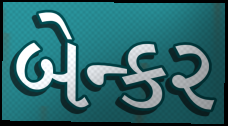
બેન્કર